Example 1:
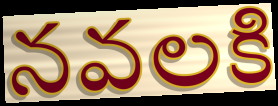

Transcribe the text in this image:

నవలకి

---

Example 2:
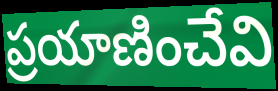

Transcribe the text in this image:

ప్రయాణించేవి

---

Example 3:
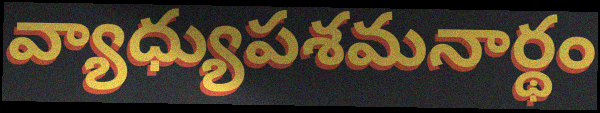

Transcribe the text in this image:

వ్యాధ్యుపశమనార్థం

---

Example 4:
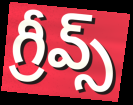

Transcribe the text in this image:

గ్రీవ్స్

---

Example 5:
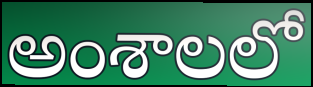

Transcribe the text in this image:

అంశాలలో